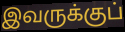
இவருக்குப்